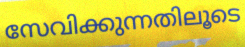
സേവിക്കുന്നതിലൂടെ